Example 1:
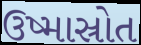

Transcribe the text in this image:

ઉષ્માસ્રોત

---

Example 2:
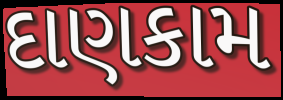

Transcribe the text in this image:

દાણકામ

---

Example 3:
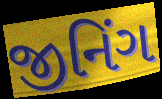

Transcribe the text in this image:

જીનિંગ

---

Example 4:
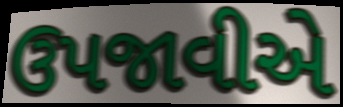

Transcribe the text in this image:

ઉપજાવીએ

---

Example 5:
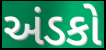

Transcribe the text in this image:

અંડકો